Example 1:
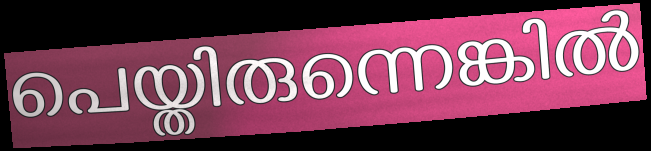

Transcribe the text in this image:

പെയ്തിരുന്നെങ്കിൽ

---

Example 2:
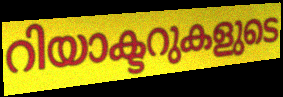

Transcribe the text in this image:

റിയാക്ടറുകളുടെ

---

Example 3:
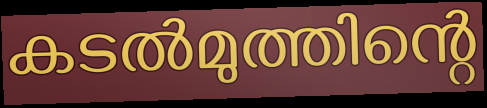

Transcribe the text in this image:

കടൽമുത്തിന്റെ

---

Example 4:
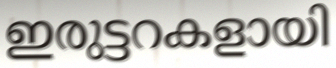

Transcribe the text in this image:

ഇരുട്ടറകളായി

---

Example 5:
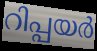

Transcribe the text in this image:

റിപ്പയർ